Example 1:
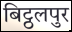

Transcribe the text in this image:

बिट्ठलपुर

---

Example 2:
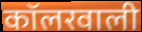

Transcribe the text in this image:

कॉलरवाली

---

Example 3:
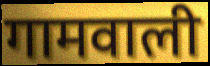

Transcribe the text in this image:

गामवाली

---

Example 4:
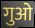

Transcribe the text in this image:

गुओ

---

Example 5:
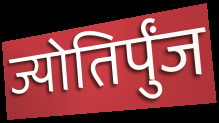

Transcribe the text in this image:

ज्योतिर्पुंज